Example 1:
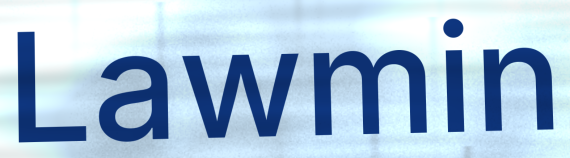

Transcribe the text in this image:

Lawmin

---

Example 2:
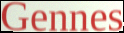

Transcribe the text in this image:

Gennes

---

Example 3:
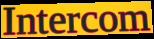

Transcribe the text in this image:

Intercom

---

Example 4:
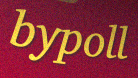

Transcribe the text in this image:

bypoll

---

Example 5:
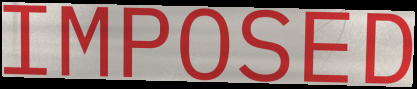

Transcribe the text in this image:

IMPOSED